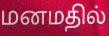
மனமதில்